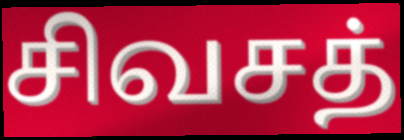
சிவசத்